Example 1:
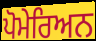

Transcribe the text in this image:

ਪੋਮੇਰਿਅਨ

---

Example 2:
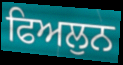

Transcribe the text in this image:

ਫਿਅਲੁਨ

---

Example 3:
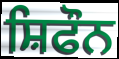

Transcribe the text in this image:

ਸ਼ਿਫੌਨ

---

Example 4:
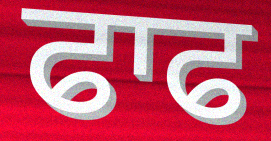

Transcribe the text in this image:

ਫਾਫ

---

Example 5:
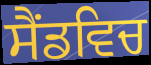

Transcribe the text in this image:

ਸੈਂਡਵਿਚ